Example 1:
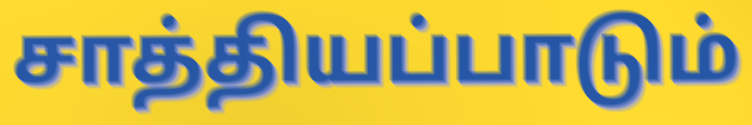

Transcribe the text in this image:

சாத்தியப்பாடும்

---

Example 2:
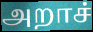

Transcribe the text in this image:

அறாச்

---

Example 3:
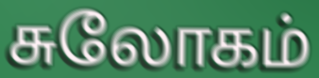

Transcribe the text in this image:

சுலோகம்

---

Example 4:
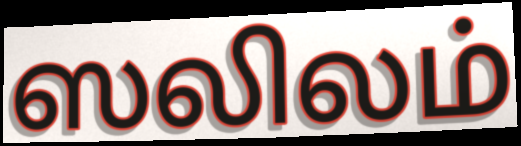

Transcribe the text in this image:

ஸலிலம்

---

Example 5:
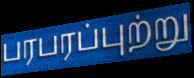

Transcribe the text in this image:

பரபரப்புற்று